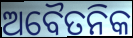
ଅବୈତନିକ